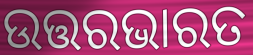
ଉତ୍ତରଭାରତ